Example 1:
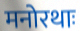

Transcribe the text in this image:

मनोरथाः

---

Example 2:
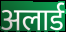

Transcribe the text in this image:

अलार्ड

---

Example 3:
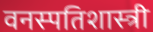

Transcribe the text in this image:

वनस्पतिशास्त्री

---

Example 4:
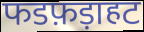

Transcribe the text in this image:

फडफ़ड़ाहट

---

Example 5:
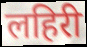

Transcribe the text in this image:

लहिरी